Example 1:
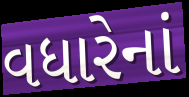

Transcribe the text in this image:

વધારેનાં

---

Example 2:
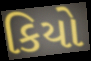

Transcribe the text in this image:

કિયો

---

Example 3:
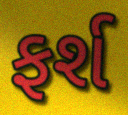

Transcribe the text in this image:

ફર્શ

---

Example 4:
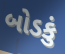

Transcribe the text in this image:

બોડકું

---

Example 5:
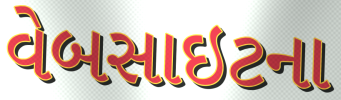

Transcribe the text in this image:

વેબસાઇટના